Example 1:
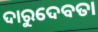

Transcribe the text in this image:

ଦାରୁଦେବତା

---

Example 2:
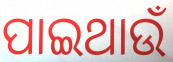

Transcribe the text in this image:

ପାଇଥାଉଁ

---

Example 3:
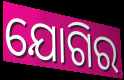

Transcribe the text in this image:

ଯୋଗିର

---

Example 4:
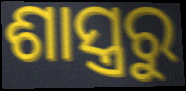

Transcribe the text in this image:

ଶାସ୍ତ୍ରରୁ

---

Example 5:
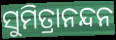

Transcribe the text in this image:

ସୁମିତ୍ରାନନ୍ଦନ